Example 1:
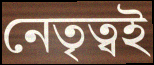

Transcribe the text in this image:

নেতৃত্বই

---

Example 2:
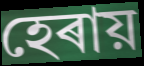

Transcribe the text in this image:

হেৰায়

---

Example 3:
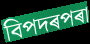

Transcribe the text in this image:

বিপদৰপৰা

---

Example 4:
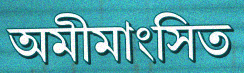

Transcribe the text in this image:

অমীমাংসিত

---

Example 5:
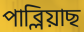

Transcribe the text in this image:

পাব্লিয়াছ